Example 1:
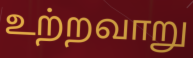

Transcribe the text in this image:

உற்றவாறு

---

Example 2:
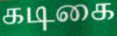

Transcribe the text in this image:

கடிகை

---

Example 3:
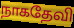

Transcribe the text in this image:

நாகதேவி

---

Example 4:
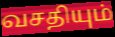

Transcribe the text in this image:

வசதியும்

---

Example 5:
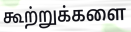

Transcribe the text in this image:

கூற்றுக்களை